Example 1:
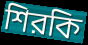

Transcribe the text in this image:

শিরকি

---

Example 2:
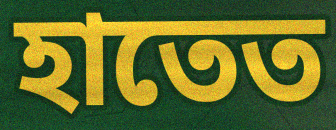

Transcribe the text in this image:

হাতেত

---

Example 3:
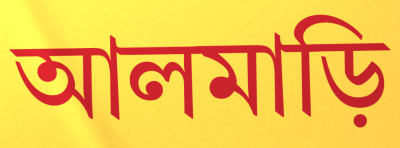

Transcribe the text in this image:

আলমাড়ি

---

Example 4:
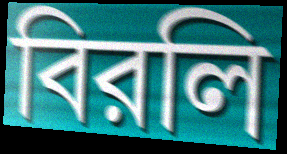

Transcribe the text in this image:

বিরলি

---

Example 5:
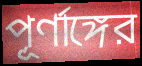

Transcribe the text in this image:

পূর্ণাঙ্গের